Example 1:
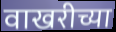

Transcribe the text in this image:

वाखरीच्या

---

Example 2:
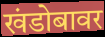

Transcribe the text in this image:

खंडोबावर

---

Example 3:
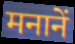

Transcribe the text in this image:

मनानें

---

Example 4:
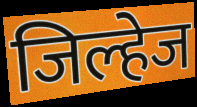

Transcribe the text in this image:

जिल्हेज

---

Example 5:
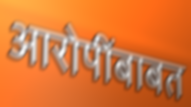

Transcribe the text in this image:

आरोपींबाबत